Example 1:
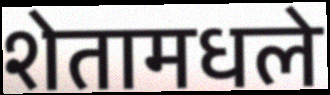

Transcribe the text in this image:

शेतामधले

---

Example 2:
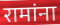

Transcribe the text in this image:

रामांना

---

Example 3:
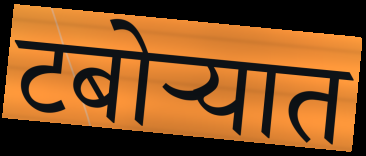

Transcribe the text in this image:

टबोऱ्यात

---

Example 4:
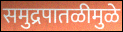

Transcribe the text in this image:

समुद्रपातळीमुळे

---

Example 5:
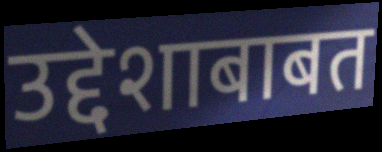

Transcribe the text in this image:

उद्देशाबाबत